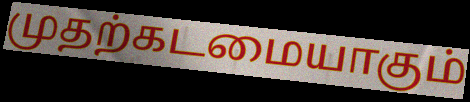
முதற்கடமையாகும்